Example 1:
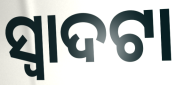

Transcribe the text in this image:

ସ୍ଵାଦଟା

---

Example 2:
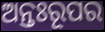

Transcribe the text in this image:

ଅନ୍ତଃରୂପର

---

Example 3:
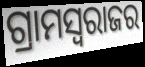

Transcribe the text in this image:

ଗ୍ରାମସ୍ୱରାଜର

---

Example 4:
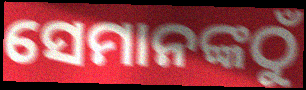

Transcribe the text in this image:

ସେମାନଙ୍କଠୁଁ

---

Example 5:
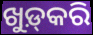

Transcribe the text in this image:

ଖୁଡ଼୍‍କରି